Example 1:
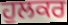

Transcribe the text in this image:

ਹੁਲਕਰ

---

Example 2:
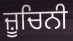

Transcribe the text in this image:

ਜ਼ੂਚਿਨੀ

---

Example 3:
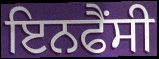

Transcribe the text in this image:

ਇਨਫੈਂਸੀ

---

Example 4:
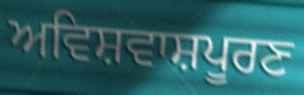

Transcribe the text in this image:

ਅਵਿਸ਼ਵਾਸ਼ਪੂਰਣ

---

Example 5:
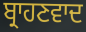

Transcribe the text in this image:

ਬ੍ਰਾਹਣਵਾਦ